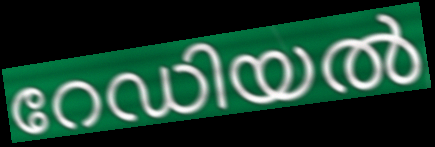
റേഡിയൽ